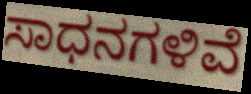
ಸಾಧನಗಳಿವೆ